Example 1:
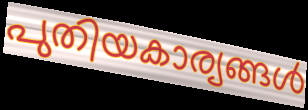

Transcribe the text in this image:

പുതിയകാര്യങ്ങൾ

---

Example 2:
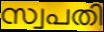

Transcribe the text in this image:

സ്വപതി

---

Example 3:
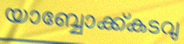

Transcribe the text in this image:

യാബ്ബോക്ക്കടവു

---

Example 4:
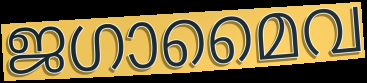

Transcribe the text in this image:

ജഗാമൈവ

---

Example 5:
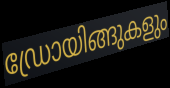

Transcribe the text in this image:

ഡ്രോയിങ്ങുകളും